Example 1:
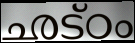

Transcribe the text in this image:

ഛട്ഠം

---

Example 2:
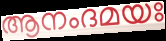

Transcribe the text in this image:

ആനംദമയഃ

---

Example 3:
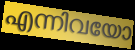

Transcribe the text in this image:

എന്നിവയോ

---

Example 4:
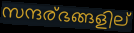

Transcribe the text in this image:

സന്ദര്ഭങ്ങളില്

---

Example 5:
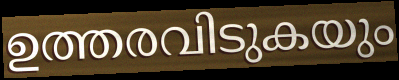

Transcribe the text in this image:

ഉത്തരവിടുകയും